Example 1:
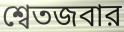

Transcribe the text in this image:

শ্বেতজবার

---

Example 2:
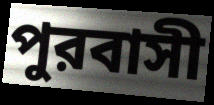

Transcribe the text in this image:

পুরবাসী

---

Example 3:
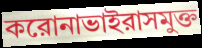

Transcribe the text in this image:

করোনাভাইরাসমুক্ত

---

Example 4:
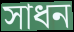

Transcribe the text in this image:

সাধন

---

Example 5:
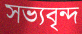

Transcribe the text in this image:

সভ্যবৃন্দ